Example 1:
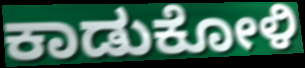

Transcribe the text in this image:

ಕಾಡುಕೋಳಿ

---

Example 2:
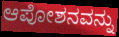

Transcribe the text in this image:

ಆಪೋಶನವನ್ನು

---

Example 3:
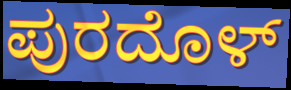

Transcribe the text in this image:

ಪುರದೊಳ್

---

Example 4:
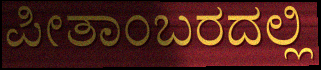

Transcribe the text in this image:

ಪೀತಾಂಬರದಲ್ಲಿ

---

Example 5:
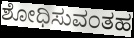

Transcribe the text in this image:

ಶೋಧಿಸುವಂತಹ